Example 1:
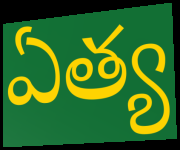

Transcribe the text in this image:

ఏత్య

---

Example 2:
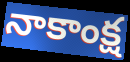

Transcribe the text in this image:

నాకాంక్ష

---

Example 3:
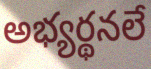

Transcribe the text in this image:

అభ్యర్థనలే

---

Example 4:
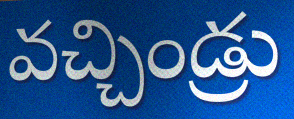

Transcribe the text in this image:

వచ్చిండ్రు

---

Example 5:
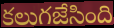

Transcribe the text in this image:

కలుగజేసింది